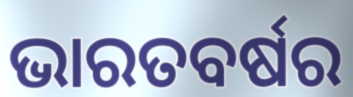
ଭାରତବର୍ଷର